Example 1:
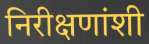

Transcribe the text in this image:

निरीक्षणांशी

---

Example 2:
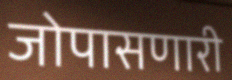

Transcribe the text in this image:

जोपासणारी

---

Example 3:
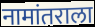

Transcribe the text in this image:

नामांतराला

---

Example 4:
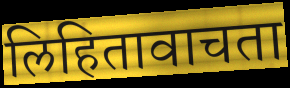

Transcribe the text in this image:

लिहितावाचता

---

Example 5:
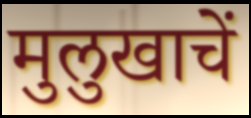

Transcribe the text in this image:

मुलुखाचें